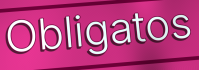
Obligatos